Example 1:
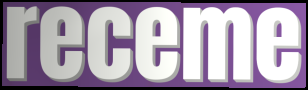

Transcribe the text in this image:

receme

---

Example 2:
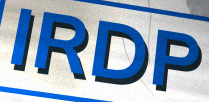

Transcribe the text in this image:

IRDP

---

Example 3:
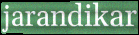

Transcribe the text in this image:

jarandikar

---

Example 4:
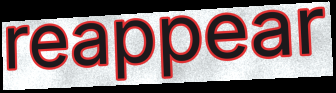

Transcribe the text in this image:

reappear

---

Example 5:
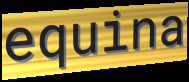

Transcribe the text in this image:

equina